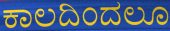
ಕಾಲದಿಂದಲೂ